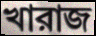
খারাজ